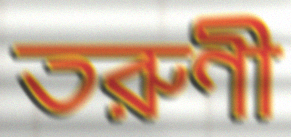
তরুণী